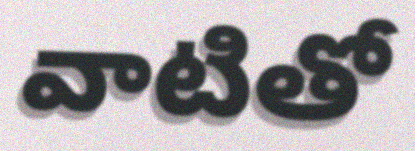
వాటితో